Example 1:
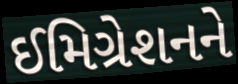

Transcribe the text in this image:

ઈમિગ્રેશનને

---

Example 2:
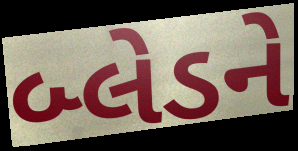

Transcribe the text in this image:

બ્લેડને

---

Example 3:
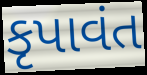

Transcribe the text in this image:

કૃપાવંત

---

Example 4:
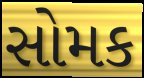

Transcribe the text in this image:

સોમક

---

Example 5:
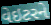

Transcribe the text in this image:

વેઇટરને